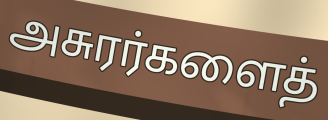
அசுரர்களைத்